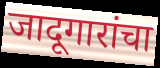
जादूगारांचा